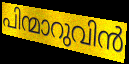
പിന്മാറുവിൻ